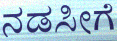
ನಡಸೀಗೆ